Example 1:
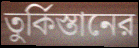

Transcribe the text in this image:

তুর্কিস্তানের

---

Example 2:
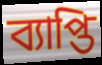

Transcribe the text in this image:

ব্যাপ্তি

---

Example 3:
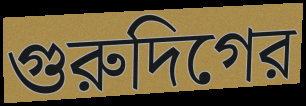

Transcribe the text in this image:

গুরুদিগের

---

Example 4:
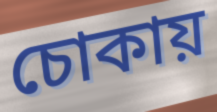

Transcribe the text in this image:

চোকায়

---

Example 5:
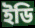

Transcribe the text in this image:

ইডি